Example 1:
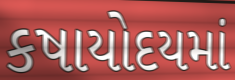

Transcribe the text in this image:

કષાયોદયમાં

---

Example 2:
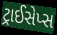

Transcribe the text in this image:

ટ્રાઈસેપ્સ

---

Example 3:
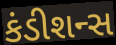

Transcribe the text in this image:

કંડીશન્સ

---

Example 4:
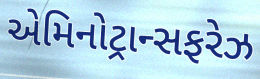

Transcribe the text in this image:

એમિનોટ્રાન્સફરેઝ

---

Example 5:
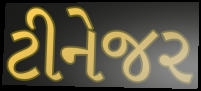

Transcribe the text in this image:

ટીનેજર